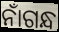
ନାଁଗନ୍ଧ